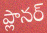
ప్లానర్